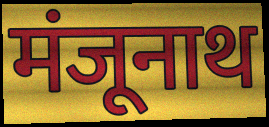
मंजूनाथ